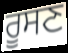
ਰੂਸਣ